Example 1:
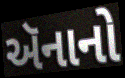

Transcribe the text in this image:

ઍનાનો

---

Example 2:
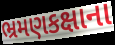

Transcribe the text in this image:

ભ્રમણકક્ષાના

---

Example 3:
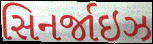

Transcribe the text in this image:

સિનર્જાઇઝ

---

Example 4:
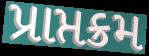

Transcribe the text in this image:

પ્રાપ્તક્રમ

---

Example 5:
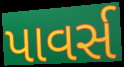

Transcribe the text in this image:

પાવર્સ